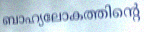
ബാഹ്യലോകത്തിന്റെ